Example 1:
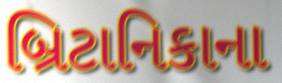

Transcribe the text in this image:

બ્રિટાનિકાના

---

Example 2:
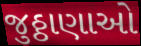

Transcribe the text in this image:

જુઠ્ઠાણાઓ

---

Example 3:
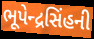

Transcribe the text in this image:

ભૂપેન્દ્રસિંહની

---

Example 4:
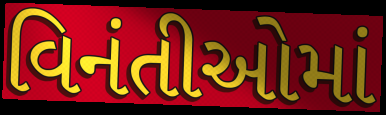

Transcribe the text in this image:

વિનંતીઓમાં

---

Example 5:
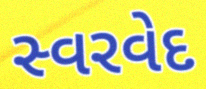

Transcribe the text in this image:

સ્વરવેદ